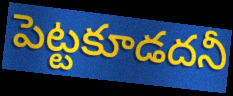
పెట్టకూడదనీ